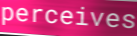
perceives